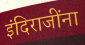
इंदिराजींना